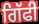
ਗਿੱਫੀ